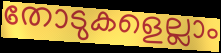
തോടുകളെല്ലാം